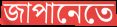
জাপানেতে